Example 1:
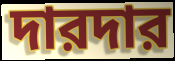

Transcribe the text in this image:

দারদার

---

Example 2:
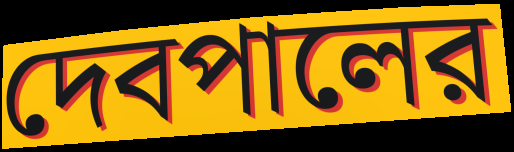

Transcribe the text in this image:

দেবপালের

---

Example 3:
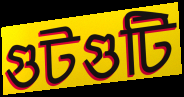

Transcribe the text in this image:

গুটগুটি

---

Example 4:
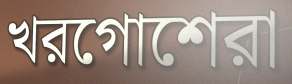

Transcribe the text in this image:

খরগোশেরা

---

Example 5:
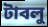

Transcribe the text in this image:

টাবলু